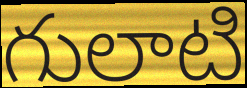
గులాటి